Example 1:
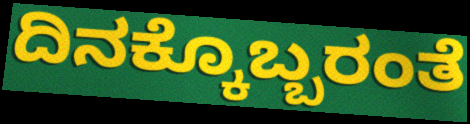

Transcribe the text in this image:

ದಿನಕ್ಕೊಬ್ಬರಂತೆ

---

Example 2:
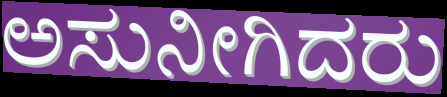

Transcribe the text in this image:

ಅಸುನೀಗಿದರು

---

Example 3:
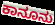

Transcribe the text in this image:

ಕಾನೂನು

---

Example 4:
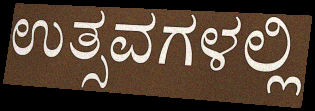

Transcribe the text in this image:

ಉತ್ಸವಗಳಲ್ಲಿ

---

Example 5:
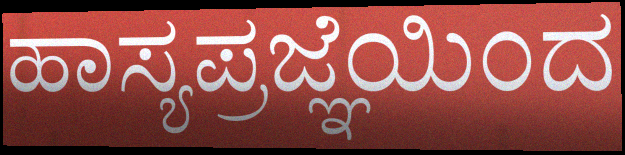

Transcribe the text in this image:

ಹಾಸ್ಯಪ್ರಜ್ಞೆಯಿಂದ